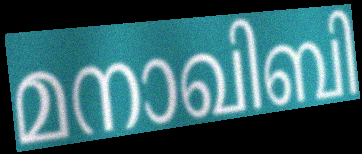
മനാഖിബി